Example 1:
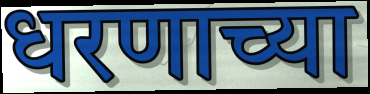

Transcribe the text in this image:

धरणाच्या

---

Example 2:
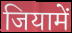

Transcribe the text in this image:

जियामें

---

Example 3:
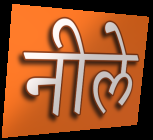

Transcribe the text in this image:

नीले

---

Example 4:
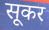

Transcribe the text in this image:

सूकर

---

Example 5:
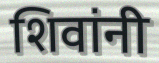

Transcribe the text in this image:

शिवांनी